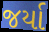
જર્યા